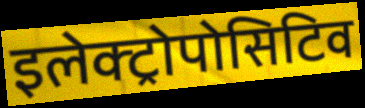
इलेक्ट्रोपोसिटिव